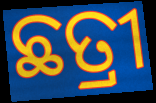
ଛତ୍ରୀ